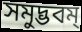
সমুদ্ভবম্